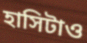
হাসিটাও